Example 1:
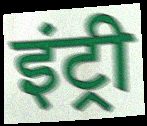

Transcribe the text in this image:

इंट्री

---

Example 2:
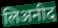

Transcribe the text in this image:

लिअनीद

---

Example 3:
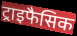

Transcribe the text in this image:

ट्राइफैसिक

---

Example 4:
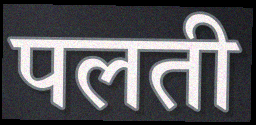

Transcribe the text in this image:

पलती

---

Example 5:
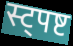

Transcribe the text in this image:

स्ट्पष्ट